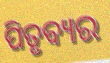
ପିତୃବ୍ୟର